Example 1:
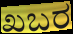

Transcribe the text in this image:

ಖಬರ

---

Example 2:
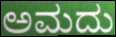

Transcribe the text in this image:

ಅಮದು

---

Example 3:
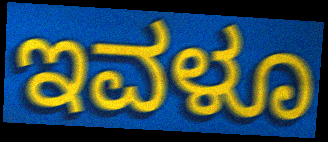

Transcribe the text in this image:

ಇವಳೂ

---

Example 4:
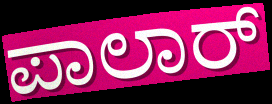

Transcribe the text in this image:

ಪಾಲಾರ್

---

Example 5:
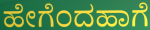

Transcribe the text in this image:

ಹೇಗೆಂದಹಾಗೆ